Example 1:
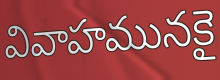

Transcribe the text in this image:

వివాహమునకై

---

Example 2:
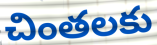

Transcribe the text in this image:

చింతలకు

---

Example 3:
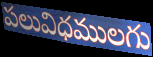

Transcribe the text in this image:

పలువిధములగు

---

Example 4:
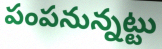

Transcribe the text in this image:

పంపనున్నట్టు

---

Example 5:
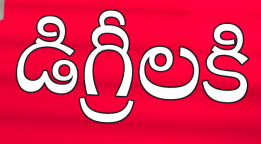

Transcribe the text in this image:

డిగ్రీలకి